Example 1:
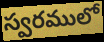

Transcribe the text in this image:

స్వరములో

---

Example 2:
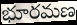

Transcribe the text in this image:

భూరమణ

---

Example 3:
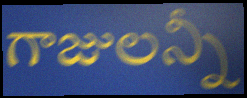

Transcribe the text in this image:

గాజులన్నీ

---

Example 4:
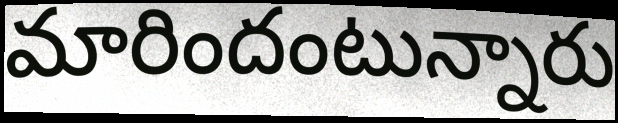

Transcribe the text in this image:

మారిందంటున్నారు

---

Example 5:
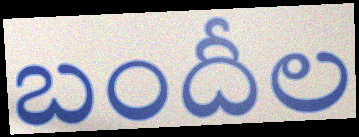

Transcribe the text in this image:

బందీల